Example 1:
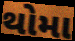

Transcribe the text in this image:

થોમા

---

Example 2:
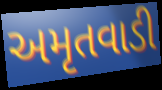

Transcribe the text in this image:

અમૃતવાડી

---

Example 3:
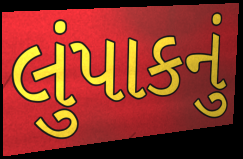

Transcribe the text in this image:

લુંપાકનું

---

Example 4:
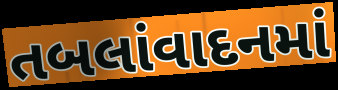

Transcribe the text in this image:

તબલાંવાદનમાં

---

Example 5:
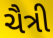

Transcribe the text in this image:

ચૈત્રી